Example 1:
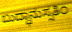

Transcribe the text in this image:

ಬುದ್ಧಾನುಸ್ಸತಿಂ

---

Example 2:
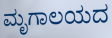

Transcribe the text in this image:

ಮೃಗಾಲಯದ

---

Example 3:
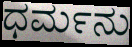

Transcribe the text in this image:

ಧರ್ಮನು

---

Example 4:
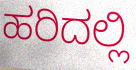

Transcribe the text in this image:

ಹರಿದಲ್ಲಿ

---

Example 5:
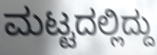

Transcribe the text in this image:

ಮಟ್ಟದಲ್ಲಿದ್ದು